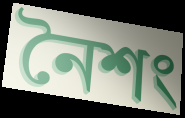
নৈশং